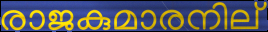
രാജകുമാരനില്